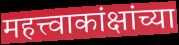
महत्त्वाकांक्षांच्या